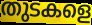
തുടകളെ